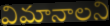
విమానాలని